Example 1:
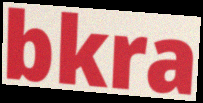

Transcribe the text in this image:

bkra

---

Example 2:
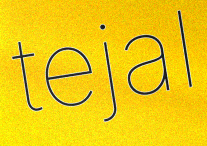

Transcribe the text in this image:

tejal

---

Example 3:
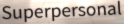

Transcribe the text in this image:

Superpersonal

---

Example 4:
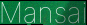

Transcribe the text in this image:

Mansai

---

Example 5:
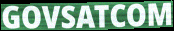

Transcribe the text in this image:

GOVSATCOM